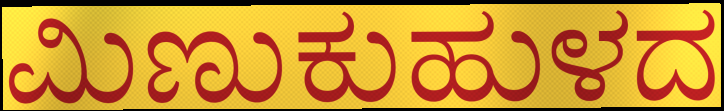
ಮಿಣುಕುಹುಳದ